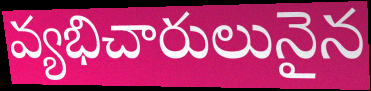
వ్యభిచారులునైన